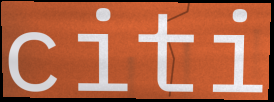
citi